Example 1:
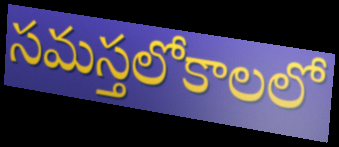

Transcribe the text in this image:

సమస్తలోకాలలో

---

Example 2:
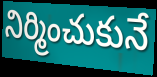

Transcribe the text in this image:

నిర్మించుకునే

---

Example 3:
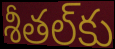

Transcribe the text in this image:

శీతల్‌కు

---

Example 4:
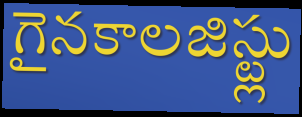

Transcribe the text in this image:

గైనకాలజిస్ట్లు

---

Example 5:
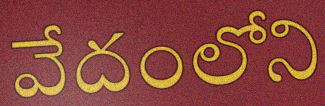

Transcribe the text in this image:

వేదంలోని